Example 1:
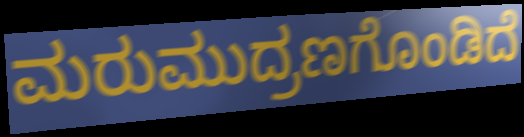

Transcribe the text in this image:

ಮರುಮುದ್ರಣಗೊಂಡಿದೆ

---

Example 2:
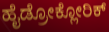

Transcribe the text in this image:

ಹೈಡ್ರೋಕ್ಲೋರಿಕ್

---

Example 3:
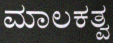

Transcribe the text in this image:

ಮಾಲಕತ್ವ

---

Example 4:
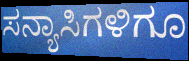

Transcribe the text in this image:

ಸನ್ಯಾಸಿಗಳಿಗೂ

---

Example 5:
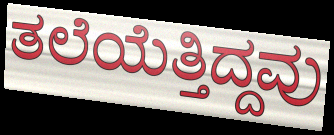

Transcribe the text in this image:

ತಲೆಯೆತ್ತಿದ್ದವು